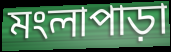
মংলাপাড়া